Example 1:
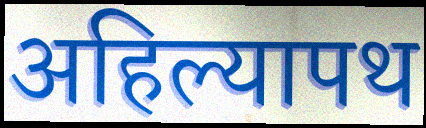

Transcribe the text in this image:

अहिल्यापथ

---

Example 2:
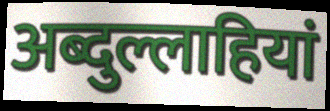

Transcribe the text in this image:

अब्दुल्लाहियां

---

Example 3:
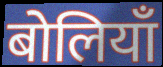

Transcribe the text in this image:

बोलियाँ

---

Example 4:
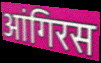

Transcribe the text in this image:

आंगिरस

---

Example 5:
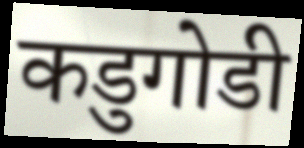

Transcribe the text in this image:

कडुगोडी